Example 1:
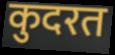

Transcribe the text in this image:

कुदरत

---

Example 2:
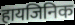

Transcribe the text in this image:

हायजिनिक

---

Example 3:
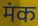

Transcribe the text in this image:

मंक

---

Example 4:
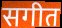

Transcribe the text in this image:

सगीत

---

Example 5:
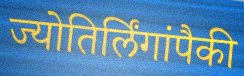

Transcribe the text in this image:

ज्योतिर्लिंगांपैकी